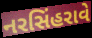
નરસિંહરાવે